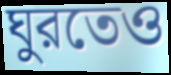
ঘুরতেও